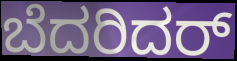
ಬೆದರಿದರ್